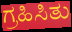
ಗ್ರಹಿಸಿತು